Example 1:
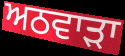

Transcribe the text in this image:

ਅਠਵਾੜਾ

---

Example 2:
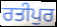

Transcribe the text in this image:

ਰਤੀਪੁਰ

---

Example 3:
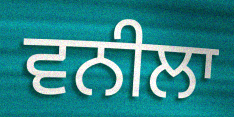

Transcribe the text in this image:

ਵਨੀਲਾ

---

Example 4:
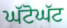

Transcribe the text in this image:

ਘੱਟੋਘੱਟ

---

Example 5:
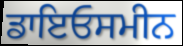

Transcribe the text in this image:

ਡਾਇਓਸਮੀਨ